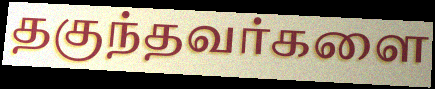
தகுந்தவர்களை